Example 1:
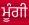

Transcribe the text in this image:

ਮੂੰਗੀ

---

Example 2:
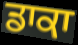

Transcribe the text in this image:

ਡਾਕਾ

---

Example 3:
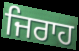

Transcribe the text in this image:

ਜਿਰਾਹ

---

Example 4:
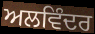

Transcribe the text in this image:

ਅਲਵਿੰਦਰ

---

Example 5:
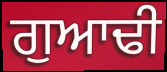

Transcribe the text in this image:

ਗੁਆਢੀ